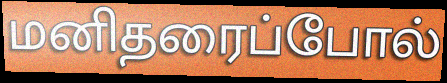
மனிதரைப்போல்